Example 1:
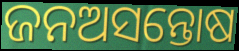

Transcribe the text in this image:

ଜନଅସନ୍ତୋଷ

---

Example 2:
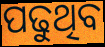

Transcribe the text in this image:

ପଢୁଥିବ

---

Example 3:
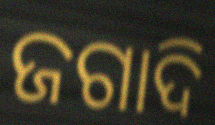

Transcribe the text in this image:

ଜଗାଦି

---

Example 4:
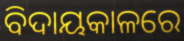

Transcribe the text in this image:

ବିଦାୟକାଳରେ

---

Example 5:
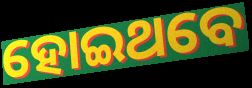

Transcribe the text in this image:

ହୋଇଥବେ